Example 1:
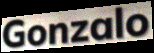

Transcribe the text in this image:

Gonzalo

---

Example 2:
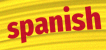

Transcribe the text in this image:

spanish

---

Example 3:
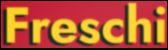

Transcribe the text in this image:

Freschi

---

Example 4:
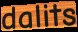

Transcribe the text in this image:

dalits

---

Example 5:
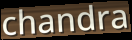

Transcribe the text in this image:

chandra